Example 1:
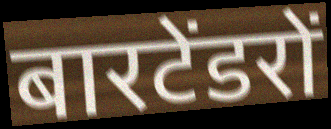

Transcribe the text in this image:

बारटेंडरों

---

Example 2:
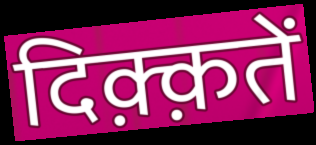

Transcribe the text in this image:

दिक़्क़तें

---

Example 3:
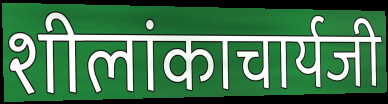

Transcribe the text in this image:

शीलांकाचार्यजी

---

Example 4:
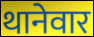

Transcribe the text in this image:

थानेवार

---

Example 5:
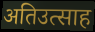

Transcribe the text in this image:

अतिउत्साह